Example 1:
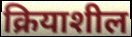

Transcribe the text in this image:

क्रियाशील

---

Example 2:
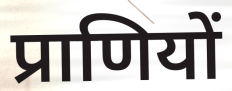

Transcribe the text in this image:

प्राणियों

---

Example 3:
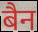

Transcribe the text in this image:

बैन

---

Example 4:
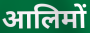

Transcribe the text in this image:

आलिमों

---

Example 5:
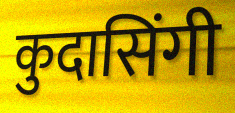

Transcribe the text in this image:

कुदासिंगी